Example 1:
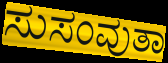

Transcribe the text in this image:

ಸುಸಂವುತಾ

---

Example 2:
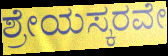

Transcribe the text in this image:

ಶ್ರೇಯಸ್ಕರವೇ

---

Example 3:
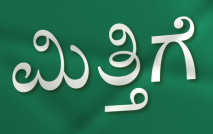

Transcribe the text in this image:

ಮಿತ್ತಿಗೆ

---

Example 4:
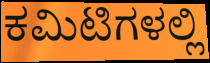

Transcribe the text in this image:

ಕಮಿಟಿಗಳಲ್ಲಿ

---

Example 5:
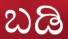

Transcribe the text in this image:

ಬಡಿ